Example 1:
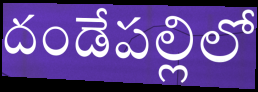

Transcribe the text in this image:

దండేపల్లిలో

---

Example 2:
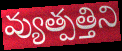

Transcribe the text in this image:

వ్యుత్పత్తిని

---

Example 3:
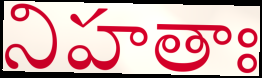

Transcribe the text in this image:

నిహతాః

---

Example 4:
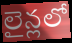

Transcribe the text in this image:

లైన్లలో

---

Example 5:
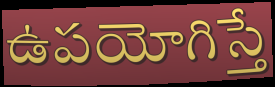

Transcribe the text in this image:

ఉపయోగిస్తే